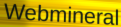
Webmineral